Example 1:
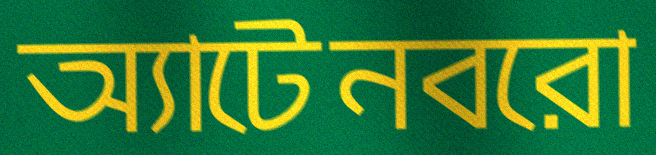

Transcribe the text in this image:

অ্যাটেনবরো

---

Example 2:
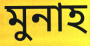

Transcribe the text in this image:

মুনাহ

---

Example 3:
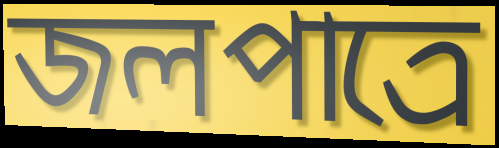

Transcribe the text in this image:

জলপাত্রে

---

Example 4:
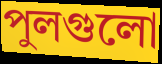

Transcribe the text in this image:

পুলগুলো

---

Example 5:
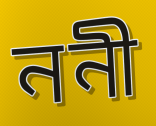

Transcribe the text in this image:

ননী